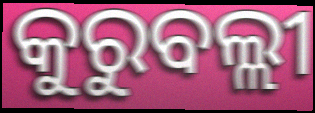
କୁରୁବଲ୍ଲୀ